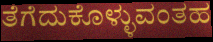
ತೆಗೆದುಕೊಳ್ಳುವಂತಹ